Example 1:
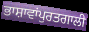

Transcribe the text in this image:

ਭਾਸ਼ਾਵਾਂਪੁਰਤਗਾਲੀ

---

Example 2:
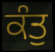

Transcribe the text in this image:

ਕੰਤੁ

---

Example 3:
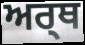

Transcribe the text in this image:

ਅਰ੍ਥ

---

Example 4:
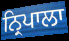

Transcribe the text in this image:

ਨ੍ਰਿਪਾਲਾ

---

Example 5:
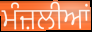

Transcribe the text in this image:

ਮੰਜ਼ਲੀਆਂ